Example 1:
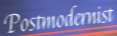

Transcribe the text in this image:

Postmodernist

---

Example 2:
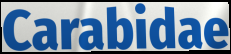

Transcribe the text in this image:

Carabidae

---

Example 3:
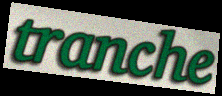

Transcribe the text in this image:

tranche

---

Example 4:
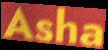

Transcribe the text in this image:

Asha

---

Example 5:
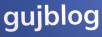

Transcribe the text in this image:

gujblog